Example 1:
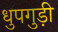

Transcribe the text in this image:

धुपगुड़ी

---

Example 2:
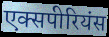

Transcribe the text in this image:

एक्सपीरियंस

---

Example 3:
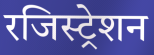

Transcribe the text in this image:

रजिस्‍ट्रेशन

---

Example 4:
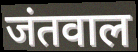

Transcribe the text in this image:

जंतवाल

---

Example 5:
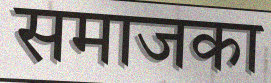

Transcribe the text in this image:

समाजका